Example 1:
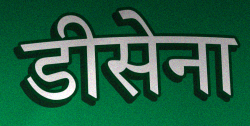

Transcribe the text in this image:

डीसेना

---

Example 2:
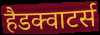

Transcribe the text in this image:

हैडक्वाटर्स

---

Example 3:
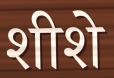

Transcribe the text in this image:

शीशे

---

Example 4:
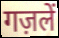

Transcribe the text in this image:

गज़लें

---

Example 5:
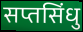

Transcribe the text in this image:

सप्तसिंधु